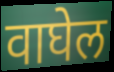
वाघेल